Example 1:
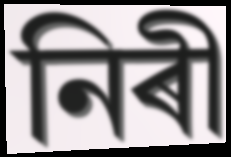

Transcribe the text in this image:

নিৰী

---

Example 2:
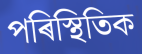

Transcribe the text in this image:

পৰিস্থিতিক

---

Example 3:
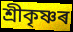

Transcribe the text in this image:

শ্ৰীকৃষ্ণৰ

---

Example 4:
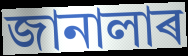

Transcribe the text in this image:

জানালাৰ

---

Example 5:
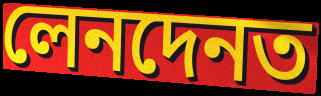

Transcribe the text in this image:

লেনদেনত